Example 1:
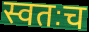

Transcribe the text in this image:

स्वतःच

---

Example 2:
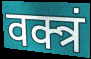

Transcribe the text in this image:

वक्त्रं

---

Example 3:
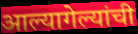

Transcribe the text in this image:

आल्यागेल्यांची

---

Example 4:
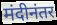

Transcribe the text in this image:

मंदीनंतर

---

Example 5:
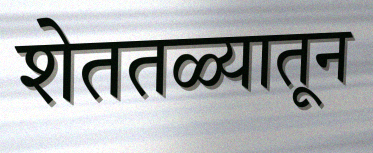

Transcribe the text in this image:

शेततळ्यातून